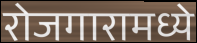
रोजगारामध्ये